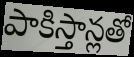
పాకిస్తాన్లతో